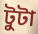
টুটা